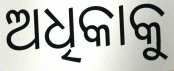
ଅଧିକାକୁ